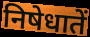
निषेधातें